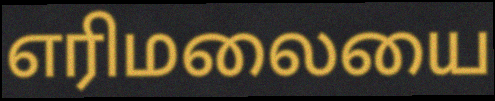
எரிமலையை